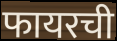
फायरची